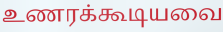
உணரக்கூடியவை